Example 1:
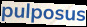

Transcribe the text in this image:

pulposus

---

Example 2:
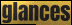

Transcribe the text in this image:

glances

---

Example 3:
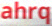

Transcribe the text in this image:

ahrq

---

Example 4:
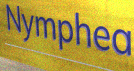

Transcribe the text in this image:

Nymphea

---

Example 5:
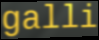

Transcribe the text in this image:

galli